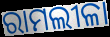
ରାମଲୀଳା